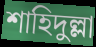
শাহিদুল্লা